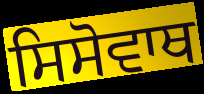
ਸਿਸੋਵਾਥ